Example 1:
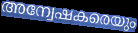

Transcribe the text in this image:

അന്വേഷകരെയും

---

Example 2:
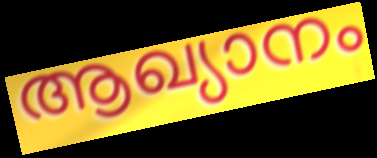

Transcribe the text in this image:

ആഖ്യാനം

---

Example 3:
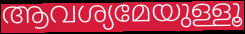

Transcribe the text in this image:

ആവശ്യമേയുള്ളൂ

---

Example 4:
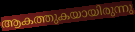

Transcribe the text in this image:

ആകത്തുകയായിരുന്നു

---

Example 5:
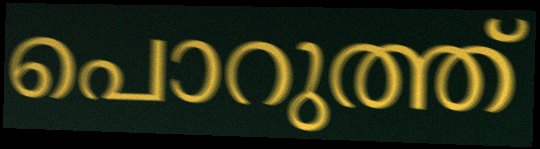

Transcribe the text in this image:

പൊറുത്ത്